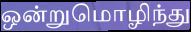
ஒன்றுமொழிந்து